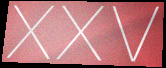
xxv